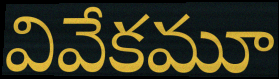
వివేకమూ